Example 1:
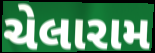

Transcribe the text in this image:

ચેલારામ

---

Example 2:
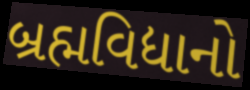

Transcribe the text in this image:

બ્રહ્મવિદ્યાનો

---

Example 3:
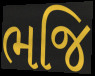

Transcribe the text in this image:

ભજિ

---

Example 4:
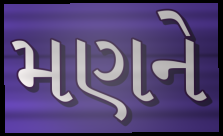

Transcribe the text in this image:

મણને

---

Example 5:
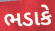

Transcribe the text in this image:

ભડાકે